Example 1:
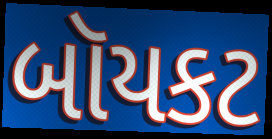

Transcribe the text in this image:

બૉયકટ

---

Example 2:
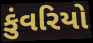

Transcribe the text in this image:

કુંવરિયો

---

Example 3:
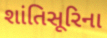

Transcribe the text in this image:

શાંતિસૂરિના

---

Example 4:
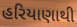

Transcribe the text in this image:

હરિયાણાથી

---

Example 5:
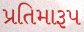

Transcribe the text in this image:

પ્રતિમારૂપ